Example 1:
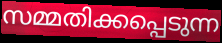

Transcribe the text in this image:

സമ്മതിക്കപ്പെടുന്ന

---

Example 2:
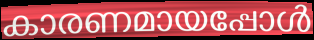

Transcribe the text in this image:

കാരണമായപ്പോൾ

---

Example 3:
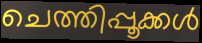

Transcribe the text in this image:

ചെത്തിപ്പൂക്കൾ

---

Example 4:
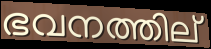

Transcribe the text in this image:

ഭവനത്തില്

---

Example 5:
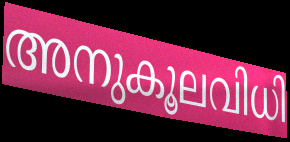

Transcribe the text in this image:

അനുകൂലവിധി